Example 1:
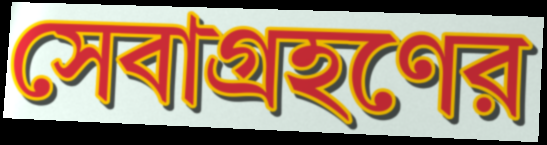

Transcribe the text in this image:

সেবাগ্রহণের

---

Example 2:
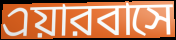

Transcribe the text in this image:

এয়ারবাসে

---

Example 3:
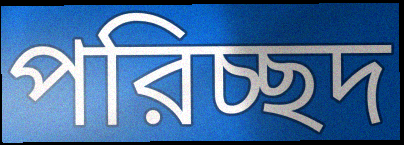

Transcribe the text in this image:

পরিচ্ছদ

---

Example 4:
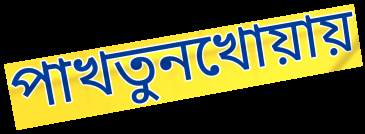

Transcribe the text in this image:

পাখতুনখোয়ায়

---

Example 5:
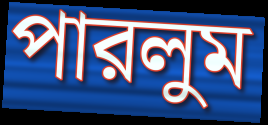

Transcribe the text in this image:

পারলুম